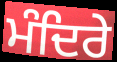
ਮੰਦਿਰੇ